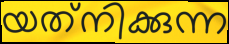
യത്‌നിക്കുന്ന